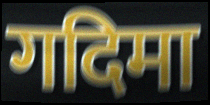
गदिमा